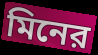
মিনের